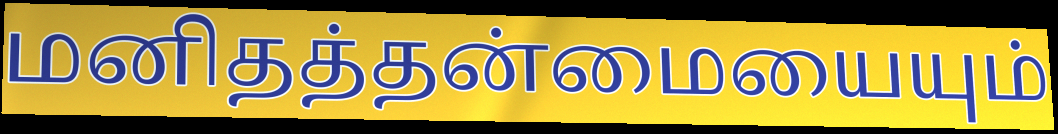
மனிதத்தன்மையையும்